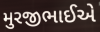
મુરજીભાઈએ